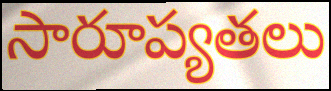
సారూప్యతలు